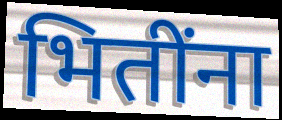
भितींना